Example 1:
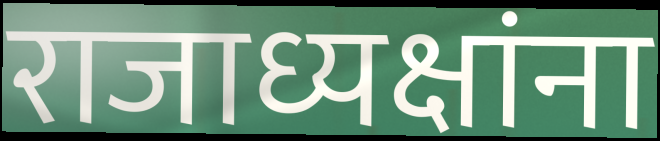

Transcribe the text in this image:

राजाध्यक्षांना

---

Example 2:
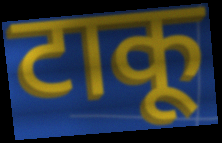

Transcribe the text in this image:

टाकू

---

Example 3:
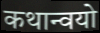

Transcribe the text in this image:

कथान्वयो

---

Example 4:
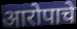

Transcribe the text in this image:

आरोपाचे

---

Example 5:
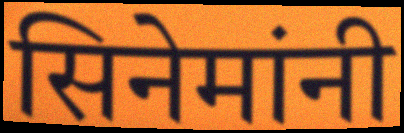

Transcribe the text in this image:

सिनेमांनी